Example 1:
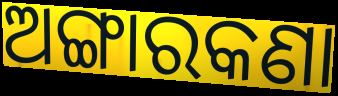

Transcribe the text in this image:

ଅଙ୍ଗାରକଣା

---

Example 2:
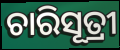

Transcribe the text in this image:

ଚାରିସୂତ୍ରୀ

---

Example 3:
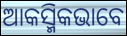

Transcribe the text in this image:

ଆକସ୍ମିକଭାବେ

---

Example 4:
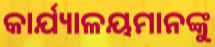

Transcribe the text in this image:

କାର୍ଯ୍ୟାଳୟମାନଙ୍କୁ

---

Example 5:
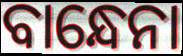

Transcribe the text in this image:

ବାନ୍ଧେନା